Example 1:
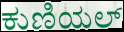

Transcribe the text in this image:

ಕುಣಿಯಲ್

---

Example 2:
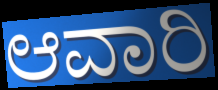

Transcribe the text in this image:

ಆವಾರಿ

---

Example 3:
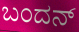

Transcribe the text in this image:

ಬಂದನ್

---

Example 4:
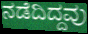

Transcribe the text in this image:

ನಡೆದಿದ್ದವು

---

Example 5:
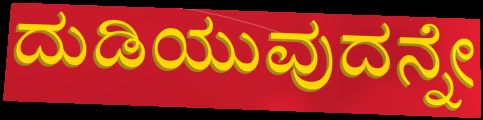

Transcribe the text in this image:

ದುಡಿಯುವುದನ್ನೇ